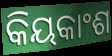
କିୟକାଂଶ